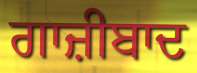
ਗਾਜ਼ੀਬਾਦ